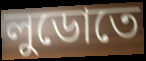
লুডোতে